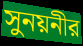
সুনয়নীর